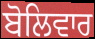
ਬੋਲਿਵਾਰ